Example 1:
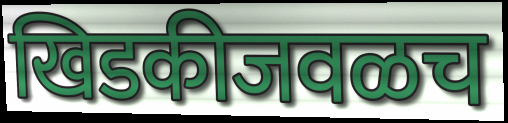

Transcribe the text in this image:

खिडकीजवळच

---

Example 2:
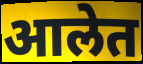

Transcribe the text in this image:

आलेत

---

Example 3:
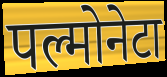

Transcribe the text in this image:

पल्मोनेटा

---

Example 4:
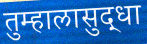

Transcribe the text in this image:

तुम्हालासुद्धा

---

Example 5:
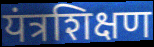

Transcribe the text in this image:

यंत्रशिक्षण